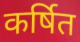
कर्षित